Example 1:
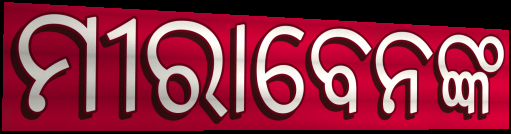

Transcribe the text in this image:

ମୀରାବେନଙ୍କ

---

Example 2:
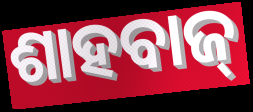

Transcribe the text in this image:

ଶାହବାଜ୍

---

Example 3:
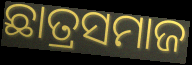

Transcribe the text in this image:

ଛାତ୍ରସମାଜ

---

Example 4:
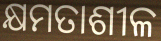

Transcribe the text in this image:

କ୍ଷମତାଶୀଳ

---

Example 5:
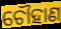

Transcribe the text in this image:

ଚୌହାଣ